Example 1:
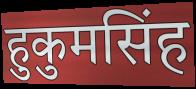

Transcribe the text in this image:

हुकुमसिंह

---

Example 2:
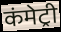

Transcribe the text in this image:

कंमेट्री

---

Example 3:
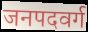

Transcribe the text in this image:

जनपदवर्ग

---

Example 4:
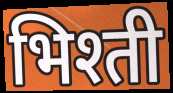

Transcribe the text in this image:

भिश्ती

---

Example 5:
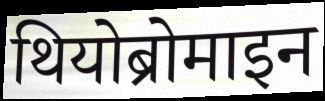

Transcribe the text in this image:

थियोब्रोमाइन